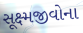
સૂક્ષ્મજીવોના